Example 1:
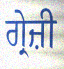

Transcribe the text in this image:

ਗ੍ਰੇਜ਼ੀ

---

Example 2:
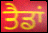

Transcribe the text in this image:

ਤੈਡਾਂ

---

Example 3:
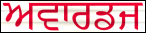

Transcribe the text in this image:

ਅਵਾਰਡਜ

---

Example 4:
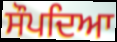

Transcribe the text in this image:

ਸੌਪਦਿਆ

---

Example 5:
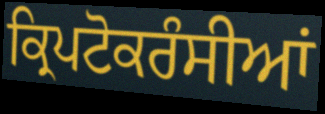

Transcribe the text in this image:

ਕ੍ਰਿਪਟੋਕਰੰਸੀਆਂ